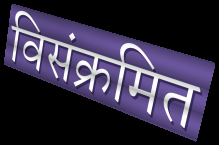
विसंक्रमित